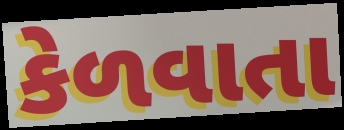
કેળવાતા